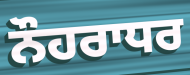
ਨੌਹਰਾਧਰ